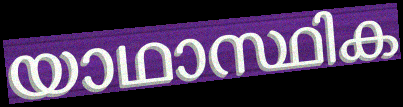
യാഥാസ്ഥിക